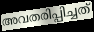
അവതരിപ്പിച്ചത്